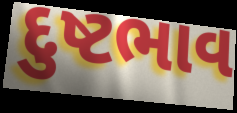
દુષ્ટભાવ